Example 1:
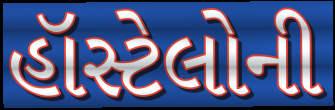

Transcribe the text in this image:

હૉસ્ટેલોની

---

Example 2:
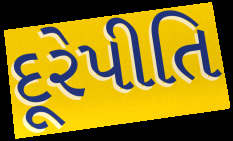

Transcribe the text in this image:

દૂરેપીતિ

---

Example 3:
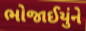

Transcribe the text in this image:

ભોજાઈયુંને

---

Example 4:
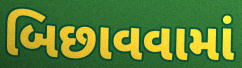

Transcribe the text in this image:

બિછાવવામાં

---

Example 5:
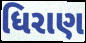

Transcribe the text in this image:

ધિરાણ